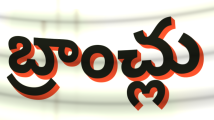
బ్రాంచ్లు